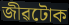
জীৱটোক